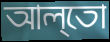
আল্‌তো